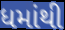
ધમાંથી